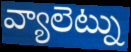
వ్యాలెట్ను